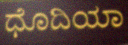
ಧೊದಿಯಾ